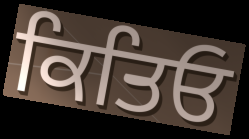
ਕਿਤਿਓ